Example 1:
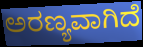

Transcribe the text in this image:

ಅರಣ್ಯವಾಗಿದೆ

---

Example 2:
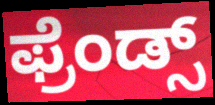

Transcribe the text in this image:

ಫ್ರೆಂಡ್ಸ್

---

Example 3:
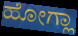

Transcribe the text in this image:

ಹೋಗ್ಲಾ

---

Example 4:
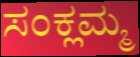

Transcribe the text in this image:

ಸಂಕ್ಲಮ್ಮ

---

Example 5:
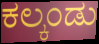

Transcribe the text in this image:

ಕಲ್ಕಂಡು